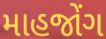
માહજોંગ